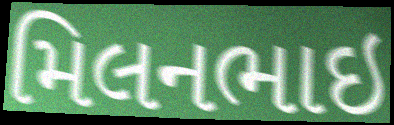
મિલનભાઇ